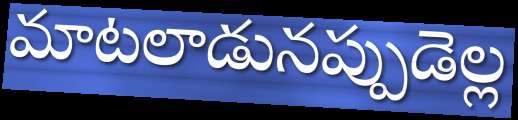
మాటలాడునప్పుడెల్ల